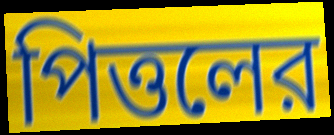
পিত্তলের